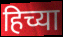
हिच्या